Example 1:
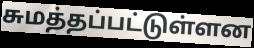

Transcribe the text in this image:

சுமத்தப்பட்டுள்ளன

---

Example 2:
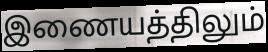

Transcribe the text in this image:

இணையத்திலும்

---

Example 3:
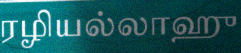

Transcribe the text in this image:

ரழியல்லாஹு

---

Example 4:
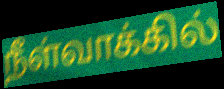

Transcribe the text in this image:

நீள்வாக்கில்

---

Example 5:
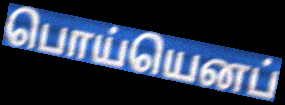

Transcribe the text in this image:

பொய்யெனப்